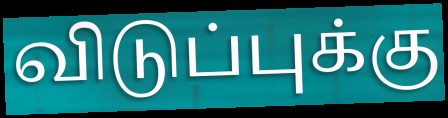
விடுப்புக்கு